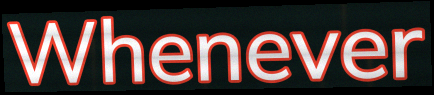
Whenever